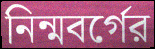
নিন্মবর্গের